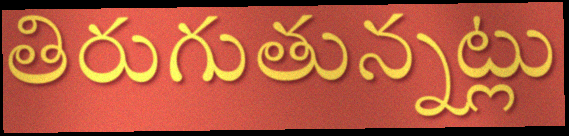
తిరుగుతున్నట్లు